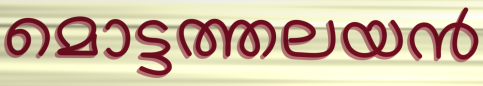
മൊട്ടത്തലയൻ